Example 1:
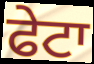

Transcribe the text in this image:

ਫੇਟਾ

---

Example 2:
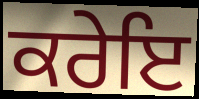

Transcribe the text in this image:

ਕਰੇਇ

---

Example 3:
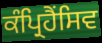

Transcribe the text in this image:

ਕੰਪ੍ਰਿਹੈਂਸਿਵ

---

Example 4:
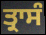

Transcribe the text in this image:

ਤ੍ਰਾਸੰ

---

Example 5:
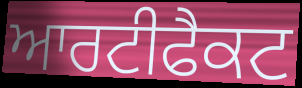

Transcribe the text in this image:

ਆਰਟੀਫੈਕਟ